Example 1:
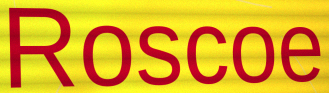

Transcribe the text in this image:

Roscoe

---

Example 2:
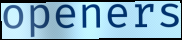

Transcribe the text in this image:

openers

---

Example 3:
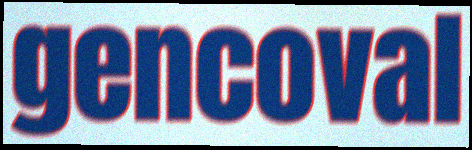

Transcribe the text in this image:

gencoval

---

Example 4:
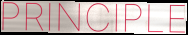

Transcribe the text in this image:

PRINCIPLE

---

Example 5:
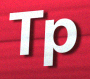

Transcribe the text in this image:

Tp